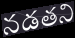
నడతని